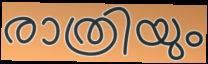
രാത്രിയും